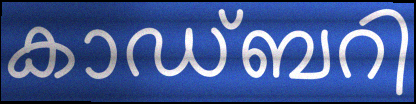
കാഡ്ബറി